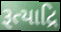
રૂત્યાદ્રિ